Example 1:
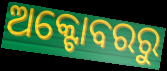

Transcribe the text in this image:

ଅକ୍ଟୋବରରୁ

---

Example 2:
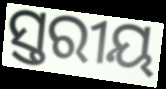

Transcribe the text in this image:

ସ୍ତରୀୟ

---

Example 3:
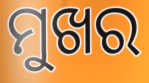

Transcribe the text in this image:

ମୁଖର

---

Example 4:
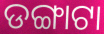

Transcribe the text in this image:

ଡଙ୍ଗାଟା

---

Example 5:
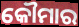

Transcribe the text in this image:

କୌମାର